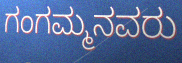
ಗಂಗಮ್ಮನವರು